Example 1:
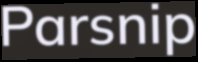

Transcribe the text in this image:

Parsnip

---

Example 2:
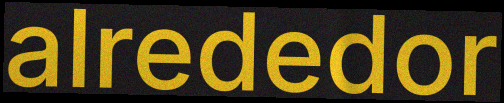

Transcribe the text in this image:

alrededor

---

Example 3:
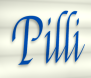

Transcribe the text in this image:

Pilli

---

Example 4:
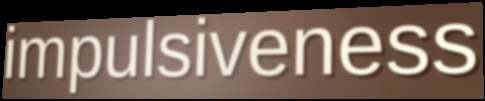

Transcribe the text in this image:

impulsiveness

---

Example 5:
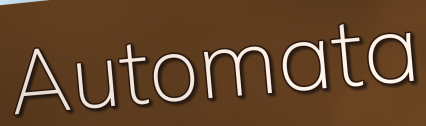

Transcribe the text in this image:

Automata